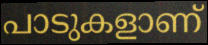
പാടുകളാണ്